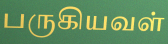
பருகியவள்